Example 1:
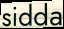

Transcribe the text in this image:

sidda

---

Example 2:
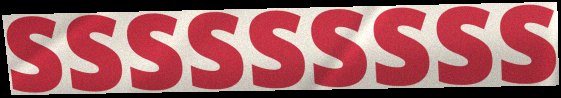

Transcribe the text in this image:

sssssssss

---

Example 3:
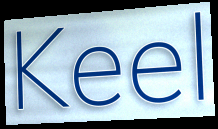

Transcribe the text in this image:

Keel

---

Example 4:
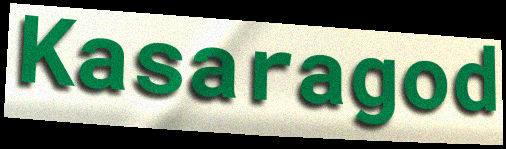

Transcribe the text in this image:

Kasaragod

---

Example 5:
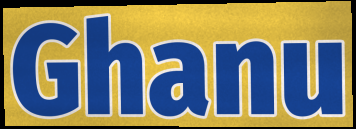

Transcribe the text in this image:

Ghanu